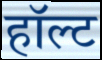
हॉल्‍ट